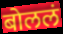
बोललं